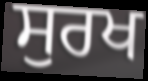
ਸੁਰਖ